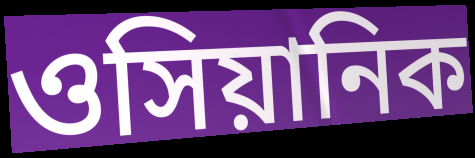
ওসিয়ানিক